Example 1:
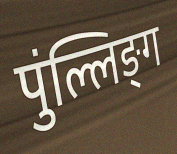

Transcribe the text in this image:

पुंल्लिङ्ग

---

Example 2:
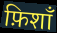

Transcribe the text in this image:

फ़िशाँ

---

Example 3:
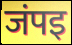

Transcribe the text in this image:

जंपइ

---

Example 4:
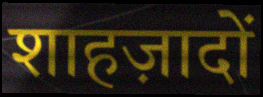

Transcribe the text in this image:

शाहज़ादों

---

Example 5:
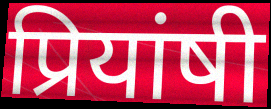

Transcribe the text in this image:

प्रियांषी